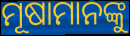
ମୂଷାମାନଙ୍କୁ